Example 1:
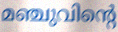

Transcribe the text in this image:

മഞ്ചുവിന്റെ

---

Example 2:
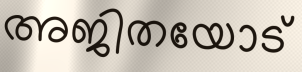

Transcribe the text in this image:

അജിതയോട്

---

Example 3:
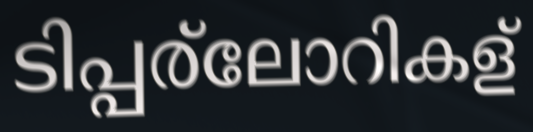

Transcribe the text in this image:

ടിപ്പര്ലോറികള്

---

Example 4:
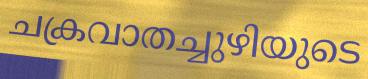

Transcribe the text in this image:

ചക്രവാതച്ചുഴിയുടെ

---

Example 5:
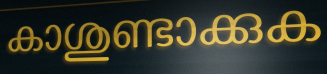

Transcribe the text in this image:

കാശുണ്ടാക്കുക